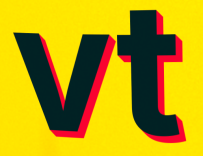
vt